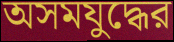
অসমযুদ্ধের